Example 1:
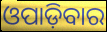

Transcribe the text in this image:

ଓପାଡ଼ିବାର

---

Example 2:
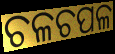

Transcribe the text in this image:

ଚଳଚପଳ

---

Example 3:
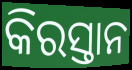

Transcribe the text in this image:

କିରସ୍ତାନ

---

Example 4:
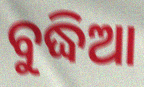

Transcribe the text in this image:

ବୁଦ୍ଧିଆ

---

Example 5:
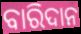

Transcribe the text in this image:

ବାରିଦାନ